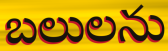
బలులను